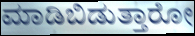
ಮಾಡಿಬಿಡುತ್ತಾರೋ